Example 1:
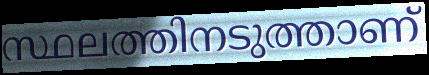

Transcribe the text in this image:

സ്ഥലത്തിനടുത്താണ്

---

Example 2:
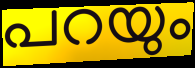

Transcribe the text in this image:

പറയും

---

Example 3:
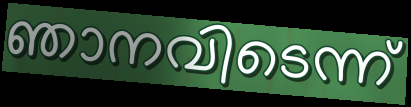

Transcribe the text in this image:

ഞാനവിടെന്ന്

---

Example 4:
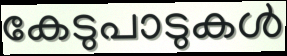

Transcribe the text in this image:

കേടുപാടുകൾ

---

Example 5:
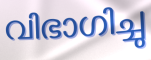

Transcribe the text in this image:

വിഭാഗിച്ചു